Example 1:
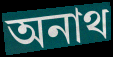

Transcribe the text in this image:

অনাথ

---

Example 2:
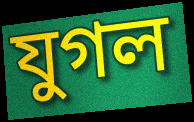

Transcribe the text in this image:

যুগল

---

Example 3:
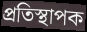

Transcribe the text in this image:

প্ৰতিস্থাপক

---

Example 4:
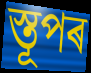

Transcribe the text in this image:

স্তূপৰ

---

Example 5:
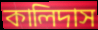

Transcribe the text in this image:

কালিদাস